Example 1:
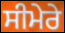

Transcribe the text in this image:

ਸੀਮੇਰੇ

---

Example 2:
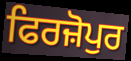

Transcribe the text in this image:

ਫਿਰਜ਼ੋਪੁਰ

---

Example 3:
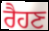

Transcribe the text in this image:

ਰੈਹਣ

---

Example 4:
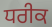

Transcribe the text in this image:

ਧਰੀਕ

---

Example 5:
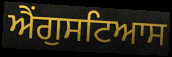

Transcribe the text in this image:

ਐਂਗੁਸਟਿਆਸ